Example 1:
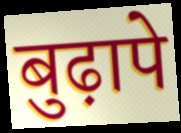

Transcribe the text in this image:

बुढ़ापे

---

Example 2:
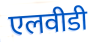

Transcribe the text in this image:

एलवीडी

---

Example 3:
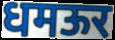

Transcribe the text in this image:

धमऊर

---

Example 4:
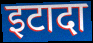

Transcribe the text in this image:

इटादा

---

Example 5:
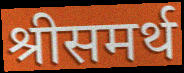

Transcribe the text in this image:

श्रीसमर्थ